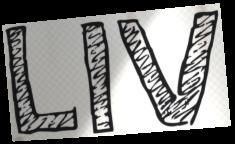
LIV